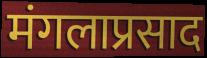
मंगलाप्रसाद